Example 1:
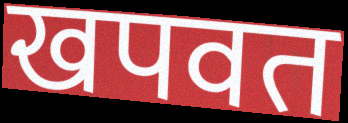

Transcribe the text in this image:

खपवत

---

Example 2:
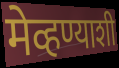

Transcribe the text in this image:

मेव्हण्याशी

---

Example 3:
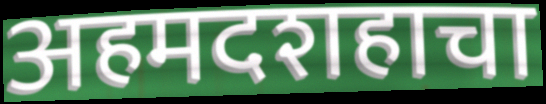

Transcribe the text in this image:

अहमदशहाचा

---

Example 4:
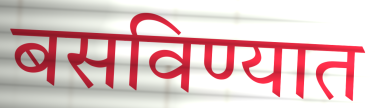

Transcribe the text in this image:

बसविण्यात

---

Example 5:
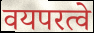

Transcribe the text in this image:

वयपरत्वे